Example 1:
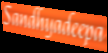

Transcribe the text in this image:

Sandhyadeepa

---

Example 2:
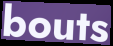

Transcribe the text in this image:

bouts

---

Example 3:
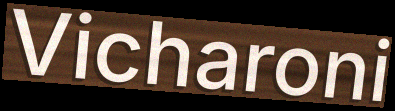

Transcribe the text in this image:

Vicharoni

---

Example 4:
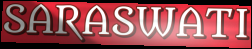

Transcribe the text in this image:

SARASWATI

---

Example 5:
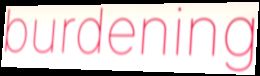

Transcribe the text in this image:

burdening